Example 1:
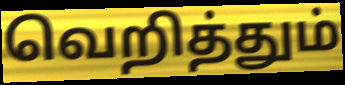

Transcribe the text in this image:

வெறித்தும்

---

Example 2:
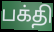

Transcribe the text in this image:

பக்தி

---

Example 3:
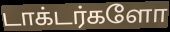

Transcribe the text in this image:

டாக்டர்களோ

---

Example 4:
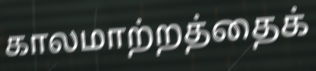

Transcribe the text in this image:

காலமாற்றத்தைக்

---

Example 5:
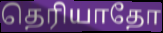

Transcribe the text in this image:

தெரியாதோ